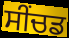
ਸੀਂਚਡ